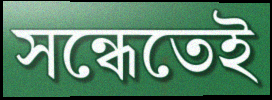
সন্ধেতেই